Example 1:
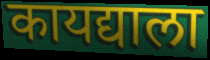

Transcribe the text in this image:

कायद्याला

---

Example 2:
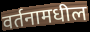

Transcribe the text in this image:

वर्तनामधील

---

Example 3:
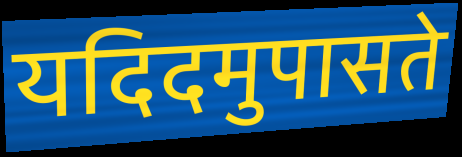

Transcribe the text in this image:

यदिदमुपासते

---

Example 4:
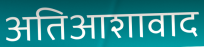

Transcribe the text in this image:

अतिआशावाद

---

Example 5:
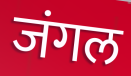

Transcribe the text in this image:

जंगल